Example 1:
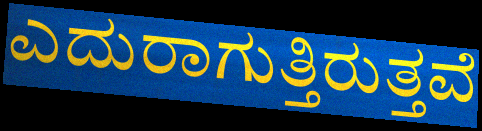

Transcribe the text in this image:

ಎದುರಾಗುತ್ತಿರುತ್ತವೆ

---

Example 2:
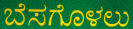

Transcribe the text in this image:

ಬೆಸಗೊಳಲು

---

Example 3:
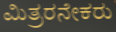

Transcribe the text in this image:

ಮಿತ್ರರನೇಕರು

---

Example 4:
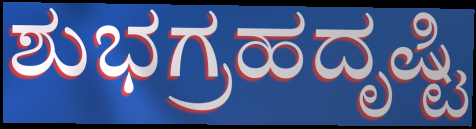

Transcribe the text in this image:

ಶುಭಗ್ರಹದೃಷ್ಟಿ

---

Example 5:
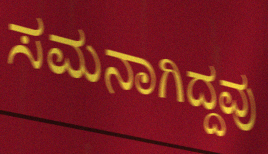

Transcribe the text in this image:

ಸಮನಾಗಿದ್ದವು